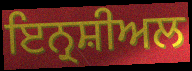
ਇਨ੍ਰਸ਼ੀਅਲ